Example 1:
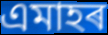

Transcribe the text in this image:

এমাহৰ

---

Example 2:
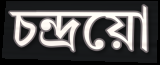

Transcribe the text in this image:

চন্দ্ৰয়ো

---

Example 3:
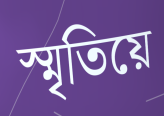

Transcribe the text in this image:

স্মৃতিয়ে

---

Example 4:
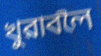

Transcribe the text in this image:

খুৱাবলৈ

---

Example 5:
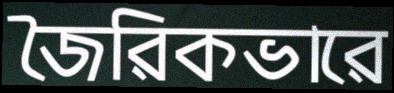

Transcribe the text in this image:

জৈৱিকভাৱে